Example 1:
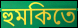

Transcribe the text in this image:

হুমকিতে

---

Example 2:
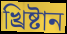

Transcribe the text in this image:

খ্রিষ্টান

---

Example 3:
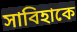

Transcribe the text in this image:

সাবিহাকে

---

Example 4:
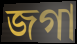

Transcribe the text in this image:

জগা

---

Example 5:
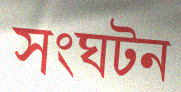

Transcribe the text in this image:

সংঘটন